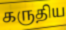
கருதிய